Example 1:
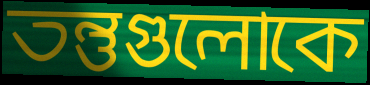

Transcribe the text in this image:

তন্তুগুলোকে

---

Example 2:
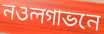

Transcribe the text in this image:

নওলগাভনে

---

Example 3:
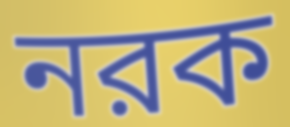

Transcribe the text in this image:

নরক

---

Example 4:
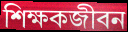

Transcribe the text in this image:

শিক্ষকজীবন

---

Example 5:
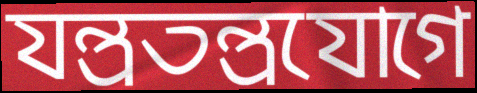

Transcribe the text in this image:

যন্ত্রতন্ত্রযোগে